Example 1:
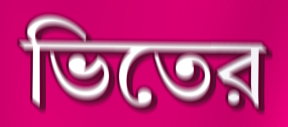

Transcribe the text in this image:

ভিতের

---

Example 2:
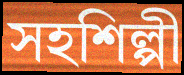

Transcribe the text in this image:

সহশিল্পী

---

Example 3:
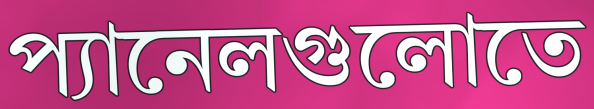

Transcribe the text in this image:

প্যানেলগুলোতে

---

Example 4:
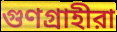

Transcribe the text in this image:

গুণগ্রাহীরা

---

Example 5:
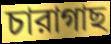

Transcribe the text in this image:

চারাগাছ